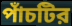
পাঁচটির